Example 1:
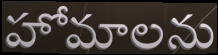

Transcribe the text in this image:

హోమాలను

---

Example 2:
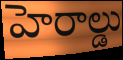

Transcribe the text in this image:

హెరాల్డు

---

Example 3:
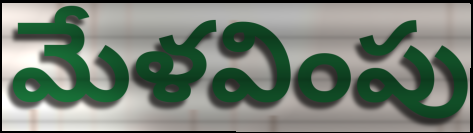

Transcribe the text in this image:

మేళవింపు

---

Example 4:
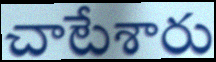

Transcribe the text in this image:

చాటేశారు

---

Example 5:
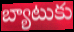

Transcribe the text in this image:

బ్యాటుకు